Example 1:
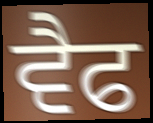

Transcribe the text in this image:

ਵੈਫ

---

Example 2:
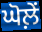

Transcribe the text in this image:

ਘੋਲ਼ੇਂ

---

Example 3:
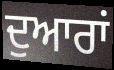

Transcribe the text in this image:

ਦੁਆਰਾਂ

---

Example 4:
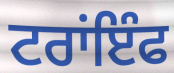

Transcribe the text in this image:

ਟਰਾਂਇੰਫ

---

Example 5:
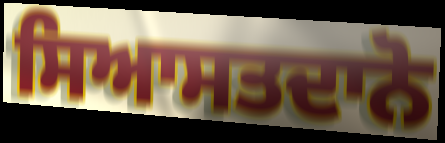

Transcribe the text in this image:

ਸਿਆਸਤਦਾਨੋ